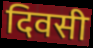
दिवसी